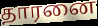
தாரனை